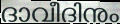
ദാവീദിനും